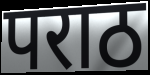
पराठ